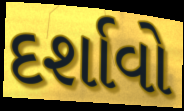
દર્શાવો